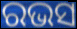
ରଭସ